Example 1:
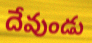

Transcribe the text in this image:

దేవుండు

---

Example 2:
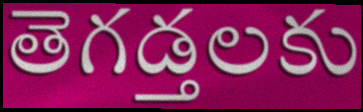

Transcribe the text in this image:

తెగడ్తలకు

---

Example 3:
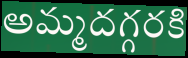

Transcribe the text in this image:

అమ్మదగ్గరకి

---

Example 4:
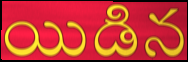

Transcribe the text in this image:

యిడిన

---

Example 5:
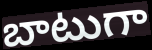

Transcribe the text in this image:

బాటుగా